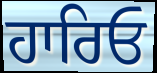
ਹਾਰਿਓ